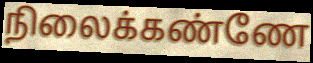
நிலைக்கண்ணே